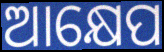
ଆକ୍ଷେପ